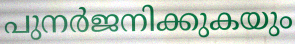
പുനർജനിക്കുകയും